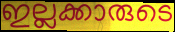
ഇല്ലക്കാരുടെ